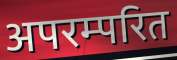
अपरम्परित